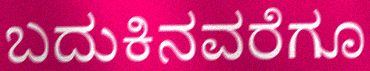
ಬದುಕಿನವರೆಗೂ